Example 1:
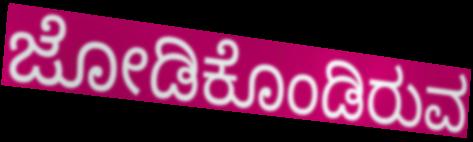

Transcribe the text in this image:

ಜೋಡಿಕೊಂಡಿರುವ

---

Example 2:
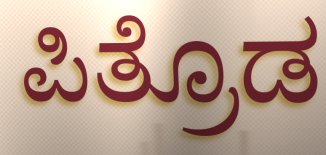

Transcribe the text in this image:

ಪಿತ್ರೊಡ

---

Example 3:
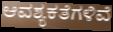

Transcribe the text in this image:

ಆವಶ್ಯಕತೆಗಳಿವೆ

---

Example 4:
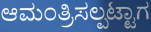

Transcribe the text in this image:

ಆಮಂತ್ರಿಸಲ್ಪಟ್ಟಾಗ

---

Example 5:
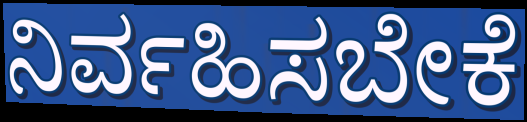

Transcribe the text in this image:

ನಿರ್ವಹಿಸಬೇಕೆ